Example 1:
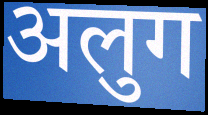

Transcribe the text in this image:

अलुग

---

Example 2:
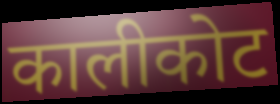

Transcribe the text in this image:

कालीकोट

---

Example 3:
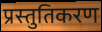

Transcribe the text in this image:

प्रस्तुतिकरण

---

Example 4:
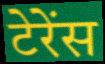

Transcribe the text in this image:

टेरेंस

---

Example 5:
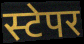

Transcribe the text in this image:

स्टेपर